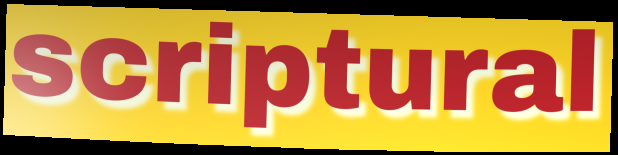
scriptural